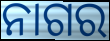
ନାଗର